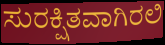
ಸುರಕ್ಷಿತವಾಗಿರಲಿ